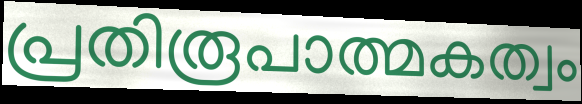
പ്രതിരൂപാത്മകത്വം